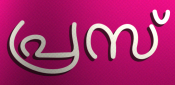
പ്രസ്